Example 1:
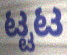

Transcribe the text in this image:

ಟ್ಟಟ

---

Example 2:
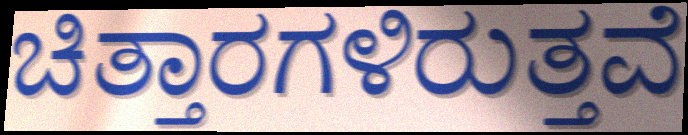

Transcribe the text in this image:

ಚಿತ್ತಾರಗಳಿರುತ್ತವೆ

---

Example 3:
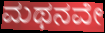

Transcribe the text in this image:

ಮಥನವೇ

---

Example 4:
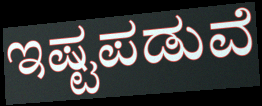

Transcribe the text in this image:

ಇಷ್ಟಪಡುವೆ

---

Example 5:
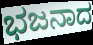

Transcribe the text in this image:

ಭಜನಾದ